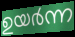
ഉയർന്ന